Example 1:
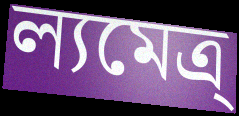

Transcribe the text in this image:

ল্যমেত্র্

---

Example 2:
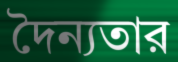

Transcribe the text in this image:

দৈন্যতার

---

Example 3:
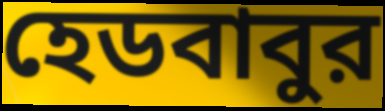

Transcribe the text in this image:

হেডবাবুর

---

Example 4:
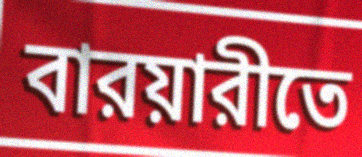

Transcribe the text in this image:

বারয়ারীতে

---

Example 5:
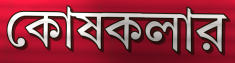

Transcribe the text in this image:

কোষকলার